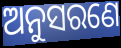
ଅନୁସରଣେ